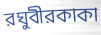
রঘুবীরকাকা